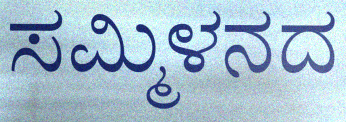
ಸಮ್ಮಿಳನದ